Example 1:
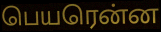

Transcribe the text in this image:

பெயரென்ன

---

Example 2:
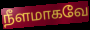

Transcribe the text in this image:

நீளமாகவே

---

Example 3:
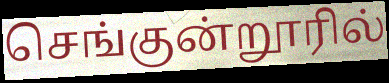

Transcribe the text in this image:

செங்குன்றூரில்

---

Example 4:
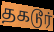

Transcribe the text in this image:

தகடூர்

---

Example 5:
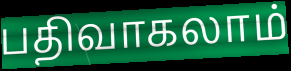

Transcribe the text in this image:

பதிவாகலாம்